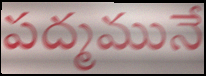
పద్మమునే